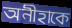
অনীহাকে